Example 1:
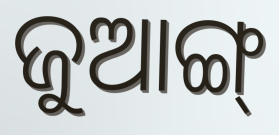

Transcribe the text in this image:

ଜୁଆଙ୍ଗ୍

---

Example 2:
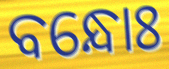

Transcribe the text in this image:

ବନ୍ଧୋଃ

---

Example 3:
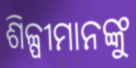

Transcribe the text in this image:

ଶିଳ୍ପୀମାନଙ୍କୁ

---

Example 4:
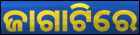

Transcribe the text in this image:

ଜାଗାଟିରେ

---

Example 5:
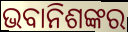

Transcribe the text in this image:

ଭବାନିଶଙ୍କର